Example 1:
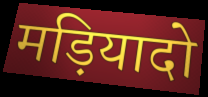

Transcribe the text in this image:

मड़ियादो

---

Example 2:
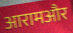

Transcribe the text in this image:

आरामऔर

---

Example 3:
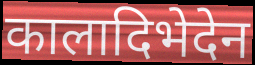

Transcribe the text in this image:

कालादिभेदेन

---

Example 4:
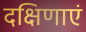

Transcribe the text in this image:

दक्षिणाएं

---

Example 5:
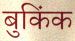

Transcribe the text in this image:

बुकिंक